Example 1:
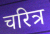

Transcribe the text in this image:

चरित्र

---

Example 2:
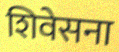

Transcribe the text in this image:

शिवेसना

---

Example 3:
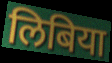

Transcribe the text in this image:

लिबिया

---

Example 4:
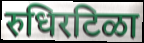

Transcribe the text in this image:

रुधिरटिळा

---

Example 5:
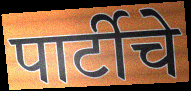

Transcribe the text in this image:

पार्टीचे